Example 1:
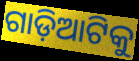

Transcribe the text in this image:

ଗାଡ଼ିଆଟିକୁ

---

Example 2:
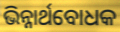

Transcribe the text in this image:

ଭିନ୍ନାର୍ଥବୋଧକ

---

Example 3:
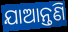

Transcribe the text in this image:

ଯାଆନ୍ତଣି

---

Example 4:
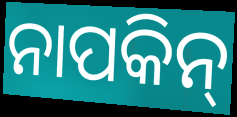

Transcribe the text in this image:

ନାପକିନ୍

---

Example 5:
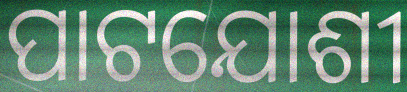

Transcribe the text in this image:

ପାଟଯୋଶୀ